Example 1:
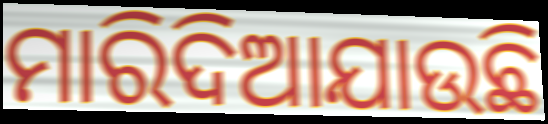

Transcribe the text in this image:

ମାରିଦିଆଯାଉଛି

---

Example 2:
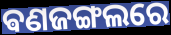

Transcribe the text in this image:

ଵଣଜଙ୍ଗଲରେ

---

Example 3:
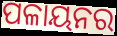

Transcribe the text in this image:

ପଳାୟନର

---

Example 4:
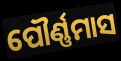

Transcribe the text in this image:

ପୌର୍ଣ୍ଣମାସ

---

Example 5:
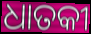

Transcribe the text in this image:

ଧାତକୀ